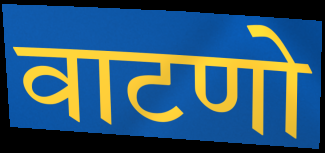
वाटणो